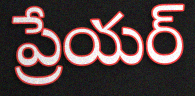
ప్రేయర్